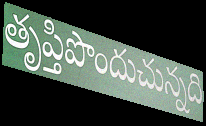
తృప్తిపొందుచున్నది